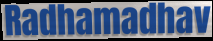
Radhamadhav